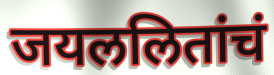
जयललितांचं